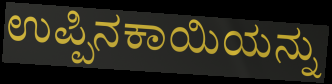
ಉಪ್ಪಿನಕಾಯಿಯನ್ನು